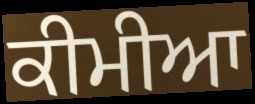
ਕੀਮੀਆ